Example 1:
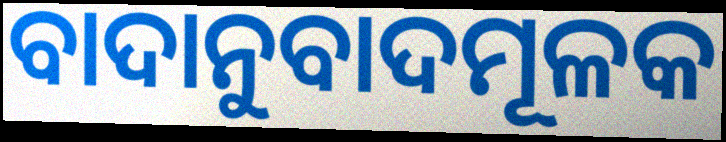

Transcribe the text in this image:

ବାଦାନୁବାଦମୂଳକ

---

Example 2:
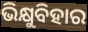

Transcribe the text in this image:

ଭିକ୍ଷୁବିହାର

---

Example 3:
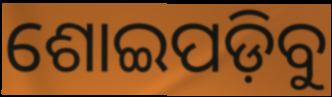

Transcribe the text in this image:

ଶୋଇପଡ଼ିବୁ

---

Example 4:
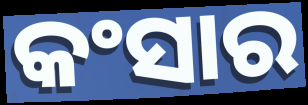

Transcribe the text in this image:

କଂସାର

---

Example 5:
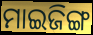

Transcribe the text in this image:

ମାଇଜିଙ୍ଗ